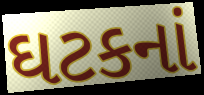
ઘટકનાં